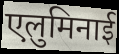
एलुमिनाई